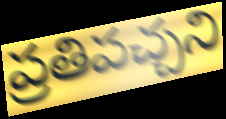
ప్రతిపచ్చని